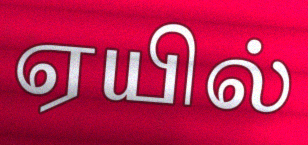
ஏயில்